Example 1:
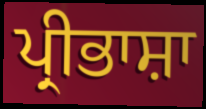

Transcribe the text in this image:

ਪ੍ਰੀਭਾਸ਼ਾ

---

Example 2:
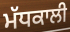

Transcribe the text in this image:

ਮੱਧਕਾਲੀ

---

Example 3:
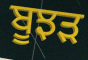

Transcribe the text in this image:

ਬੂਝੜ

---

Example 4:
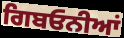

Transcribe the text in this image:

ਗਿਬਓਨੀਆਂ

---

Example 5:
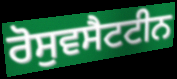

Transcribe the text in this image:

ਰੋਸੁਵਸੈਟਟੀਨ